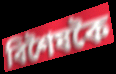
বিশৈষকৈ